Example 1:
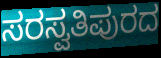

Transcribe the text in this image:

ಸರಸ್ವತಿಪುರದ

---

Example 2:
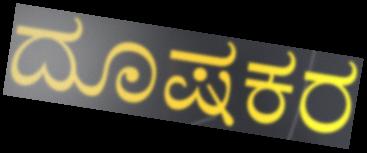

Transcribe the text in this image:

ದೂಷಕರ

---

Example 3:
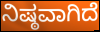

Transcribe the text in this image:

ನಿಷ್ಠವಾಗಿದೆ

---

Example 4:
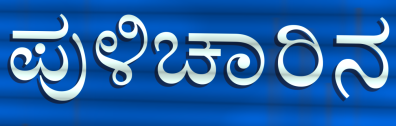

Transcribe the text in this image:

ಪುಳಿಚಾರಿನ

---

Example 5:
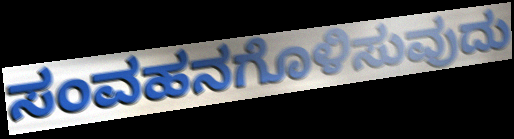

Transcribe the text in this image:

ಸಂವಹನಗೊಳಿಸುವುದು